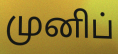
முனிப்